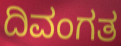
ದಿವಂಗತ